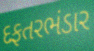
દફતરભંડાર